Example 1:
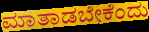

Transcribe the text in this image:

ಮಾತಾಡಬೇಕೆಂದು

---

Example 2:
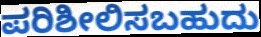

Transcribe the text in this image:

ಪರಿಶೀಲಿಸಬಹುದು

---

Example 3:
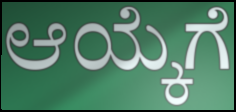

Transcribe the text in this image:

ಆಯ್ಕೆಗೆ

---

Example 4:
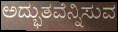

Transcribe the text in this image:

ಅದ್ಭುತವೆನ್ನಿಸುವ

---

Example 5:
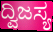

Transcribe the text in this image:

ದ್ವಿಜಸ್ಯ